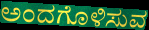
ಅಂದಗೊಳಿಸುವ